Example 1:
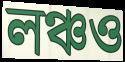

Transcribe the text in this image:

লঞ্চও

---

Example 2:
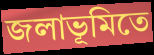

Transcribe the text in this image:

জলাভূমিতে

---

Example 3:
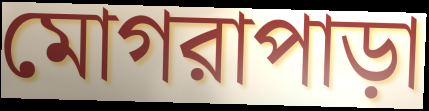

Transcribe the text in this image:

মোগরাপাড়া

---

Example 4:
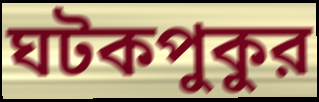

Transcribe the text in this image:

ঘটকপুকুর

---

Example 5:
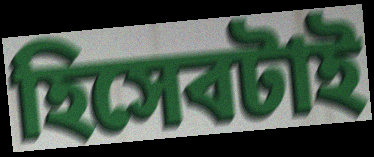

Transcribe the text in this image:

হিসেবটাই